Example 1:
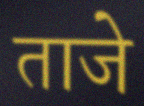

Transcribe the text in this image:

ताजे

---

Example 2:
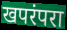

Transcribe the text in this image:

खपरंपरा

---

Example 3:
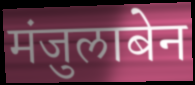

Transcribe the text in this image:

मंजुलाबेन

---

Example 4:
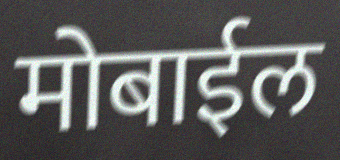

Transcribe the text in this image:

मोबाईल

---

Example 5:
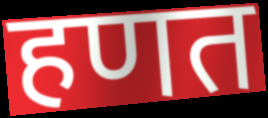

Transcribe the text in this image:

हणत